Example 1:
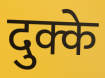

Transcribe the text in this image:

दुक्के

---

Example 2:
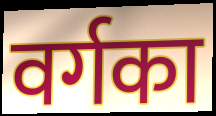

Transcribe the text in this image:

वर्गका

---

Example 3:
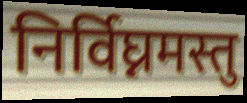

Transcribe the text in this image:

निर्विघ्नमस्तु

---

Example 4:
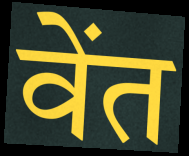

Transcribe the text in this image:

वेंत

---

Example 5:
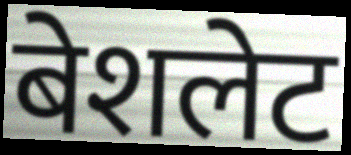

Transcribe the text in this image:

बेशलेट